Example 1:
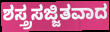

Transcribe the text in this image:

ಶಸ್ತ್ರಸಜ್ಜಿತವಾದ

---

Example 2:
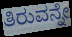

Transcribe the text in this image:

ತಿರುವನ್ನೇ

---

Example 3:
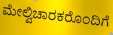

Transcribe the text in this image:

ಮೇಲ್ವಿಚಾರಕರೊಂದಿಗೆ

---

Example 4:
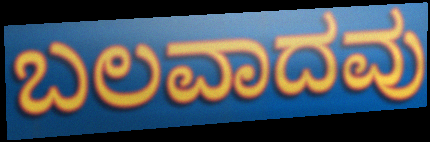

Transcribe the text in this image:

ಬಲವಾದವು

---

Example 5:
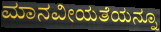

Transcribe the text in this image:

ಮಾನವೀಯತೆಯನ್ನೂ